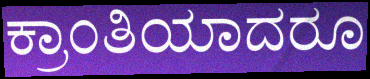
ಕ್ರಾಂತಿಯಾದರೂ